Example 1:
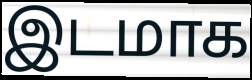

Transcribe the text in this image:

இடமாக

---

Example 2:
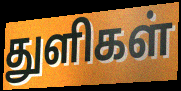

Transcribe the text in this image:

துளிகள்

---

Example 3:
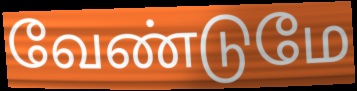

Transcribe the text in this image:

வேண்டுமே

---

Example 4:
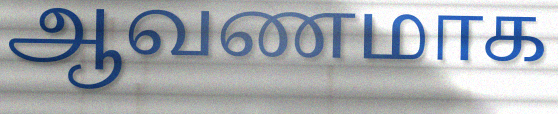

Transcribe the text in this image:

ஆவணமாக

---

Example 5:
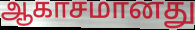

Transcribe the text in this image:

ஆகாசமானது